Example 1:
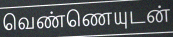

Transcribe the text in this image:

வெண்ணெயுடன்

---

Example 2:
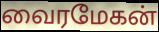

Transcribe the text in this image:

வைரமேகன்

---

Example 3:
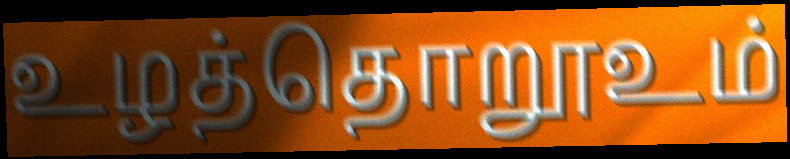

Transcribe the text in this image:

உழத்தொறூஉம்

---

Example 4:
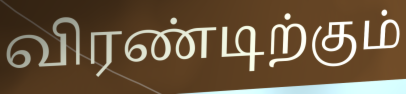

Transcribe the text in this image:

விரண்டிற்கும்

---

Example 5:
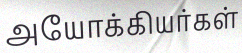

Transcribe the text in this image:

அயோக்கியர்கள்